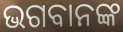
ଭଗବାନଙ୍କ